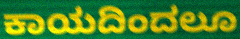
ಕಾಯದಿಂದಲೂ